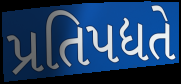
પ્રતિપદ્યતે